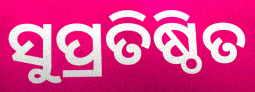
ସୁପ୍ରତିଷ୍ଠିତ